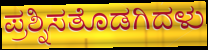
ಪ್ರಶ್ನಿಸತೊಡಗಿದಳು